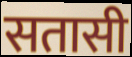
सतासी